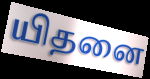
யிதனை